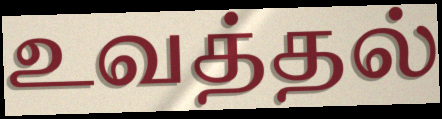
உவத்தல்